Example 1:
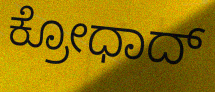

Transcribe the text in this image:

ಕ್ರೋಧಾದ್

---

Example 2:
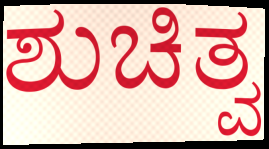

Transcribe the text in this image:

ಶುಚಿತ್ವ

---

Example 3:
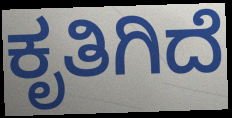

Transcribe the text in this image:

ಕೃತಿಗಿದೆ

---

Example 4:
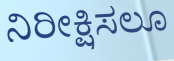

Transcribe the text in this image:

ನಿರೀಕ್ಷಿಸಲೂ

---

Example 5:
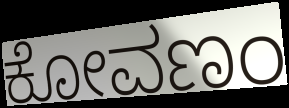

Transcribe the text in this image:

ಕೋವಣಂ